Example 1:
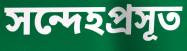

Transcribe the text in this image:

সন্দেহপ্রসূত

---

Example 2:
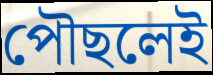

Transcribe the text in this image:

পৌছলেই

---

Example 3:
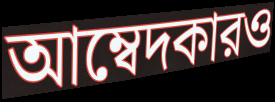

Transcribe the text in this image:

আম্বেদকারও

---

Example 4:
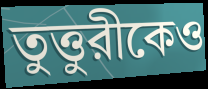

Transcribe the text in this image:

তুত্তুরীকেও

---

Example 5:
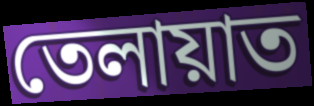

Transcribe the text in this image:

তেলায়াত